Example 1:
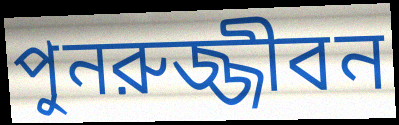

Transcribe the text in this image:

পুনরুজ্জীবন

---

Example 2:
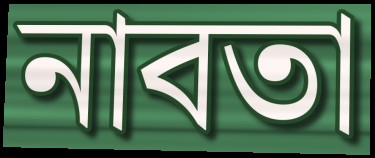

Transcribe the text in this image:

নাবতা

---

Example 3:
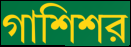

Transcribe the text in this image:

গাশিশর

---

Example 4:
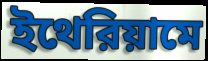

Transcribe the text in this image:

ইথেরিয়ামে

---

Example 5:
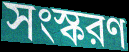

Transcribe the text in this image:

সংস্করণ